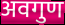
अवगुण